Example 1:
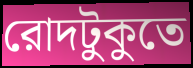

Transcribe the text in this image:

রোদটুকুতে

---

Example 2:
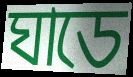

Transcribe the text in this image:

ঘাডে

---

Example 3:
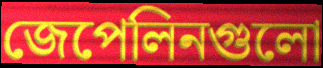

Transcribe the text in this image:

জেপেলিনগুলো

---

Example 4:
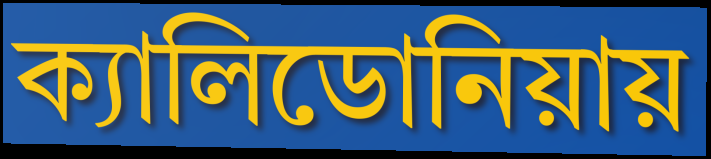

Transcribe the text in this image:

ক্যালিডোনিয়ায়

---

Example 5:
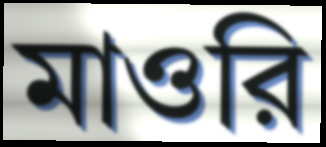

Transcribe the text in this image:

মাওরি